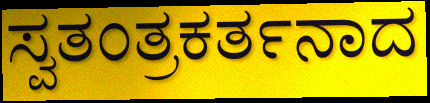
ಸ್ವತಂತ್ರಕರ್ತನಾದ